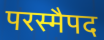
परस्मैपद